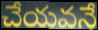
చేయవనే